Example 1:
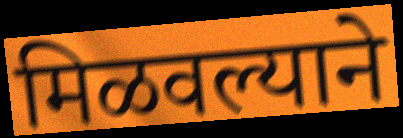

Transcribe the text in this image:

मिळवल्याने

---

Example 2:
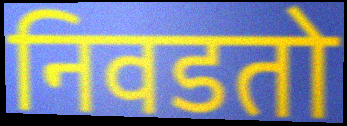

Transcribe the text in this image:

निवडतो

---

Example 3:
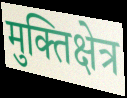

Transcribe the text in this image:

मुक्तिक्षेत्र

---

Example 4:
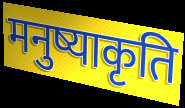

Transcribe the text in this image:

मनुष्याकृति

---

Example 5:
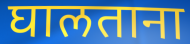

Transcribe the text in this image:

घालताना